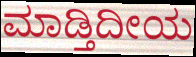
ಮಾಡ್ತಿದೀಯ